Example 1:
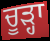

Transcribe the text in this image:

ਚੂੜ੍ਹਾ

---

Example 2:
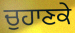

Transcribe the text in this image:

ਚੁਹਾਣਕੇ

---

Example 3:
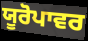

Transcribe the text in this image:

ਯੂਰੋਪਾਵਰ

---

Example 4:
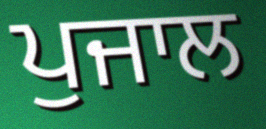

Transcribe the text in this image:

ਪੁਜਾਲ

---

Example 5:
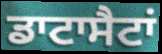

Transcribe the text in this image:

ਡਾਟਾਸੈਟਾਂ